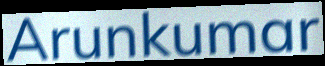
Arunkumar